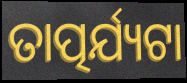
ତାତ୍ପର୍ଯ୍ୟଟା